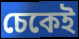
চেকেই